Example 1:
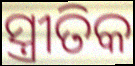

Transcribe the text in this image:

ସ୍ତ୍ରୀତିକ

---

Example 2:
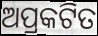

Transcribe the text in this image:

ଅପ୍ରକଟିତ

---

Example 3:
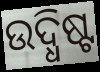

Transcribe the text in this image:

ଉଦ୍ଧିଷ୍ଟ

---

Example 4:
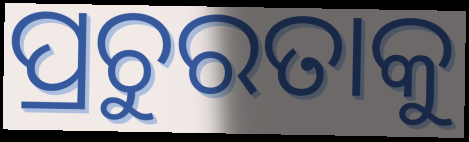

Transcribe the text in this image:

ପ୍ରଚୁରତାକୁ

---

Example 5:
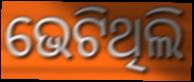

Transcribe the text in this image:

ଭେଟିଥିଲି